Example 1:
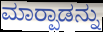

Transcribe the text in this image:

ಮಾರ‍್ಪಾಡನ್ನು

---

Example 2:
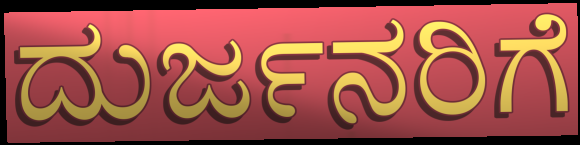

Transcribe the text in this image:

ದುರ್ಜನರಿಗೆ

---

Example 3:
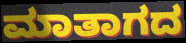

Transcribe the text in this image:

ಮಾತಾಗದ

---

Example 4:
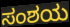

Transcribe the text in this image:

ಸಂಶಯ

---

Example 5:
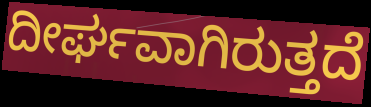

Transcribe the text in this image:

ದೀರ್ಘವಾಗಿರುತ್ತದೆ